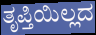
ತೃಪ್ತಿಯಿಲ್ಲದ